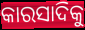
କାରସାଦିକୁ